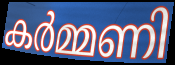
കർമ്മണി